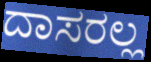
ದಾಸರಲ್ಲ